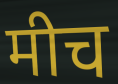
मीच